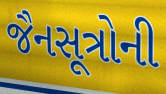
જૈનસૂત્રોની